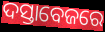
ଦସ୍ତାବେଜରେ